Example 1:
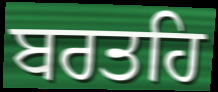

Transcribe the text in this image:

ਬਰਤਹਿ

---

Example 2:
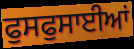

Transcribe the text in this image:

ਫੁਸਫੁਸਾਈਆਂ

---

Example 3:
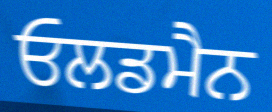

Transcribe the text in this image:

ਓਲਡਮੈਨ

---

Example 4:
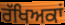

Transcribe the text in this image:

ਰੱਖਿਅਕਾਂ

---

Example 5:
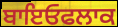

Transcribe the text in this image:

ਬਾਇਓਫਲਾਕ